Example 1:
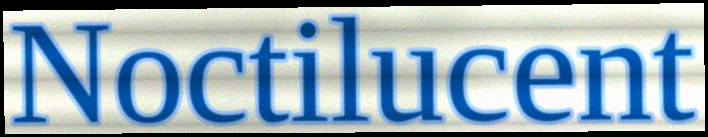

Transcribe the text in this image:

Noctilucent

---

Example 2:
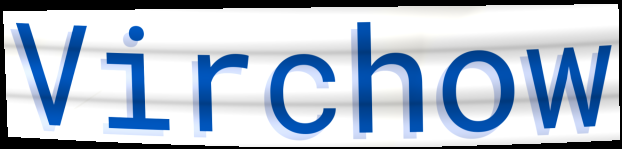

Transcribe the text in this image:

Virchow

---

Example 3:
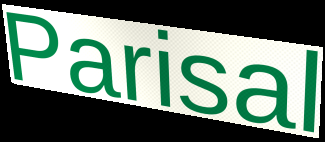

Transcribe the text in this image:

Parisal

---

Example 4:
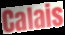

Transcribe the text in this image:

Calais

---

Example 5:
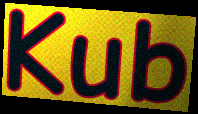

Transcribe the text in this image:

Kub